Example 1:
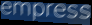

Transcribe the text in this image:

empress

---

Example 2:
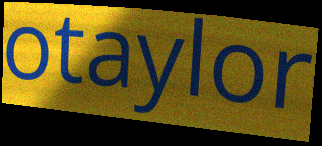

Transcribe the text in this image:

otaylor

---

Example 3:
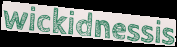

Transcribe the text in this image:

wickidnessis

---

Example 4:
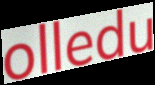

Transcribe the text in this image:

olledu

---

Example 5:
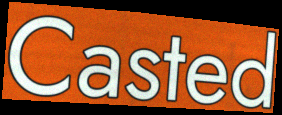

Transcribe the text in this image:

Casted